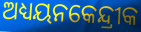
ଅଧ୍ୟୟନକେନ୍ଦ୍ରୀକ